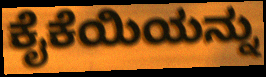
ಕೈಕೆಯಿಯನ್ನು